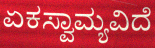
ಏಕಸ್ವಾಮ್ಯವಿದೆ